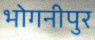
भोगनीपुर